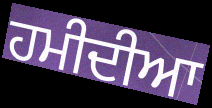
ਹਮੀਦੀਆ